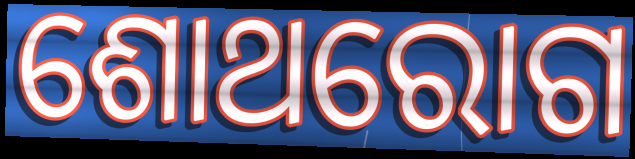
ଶୋଥରୋଗ